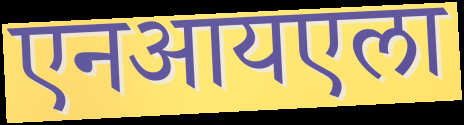
एनआयएला